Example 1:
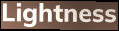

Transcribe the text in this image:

Lightness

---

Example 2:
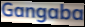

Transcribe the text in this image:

Gangaba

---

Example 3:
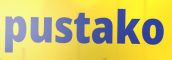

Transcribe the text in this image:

pustako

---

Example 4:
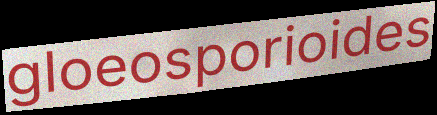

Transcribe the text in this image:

gloeosporioides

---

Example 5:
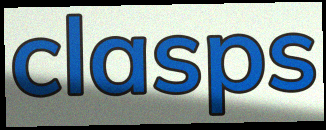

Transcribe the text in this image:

clasps